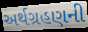
અર્થગ્રહણની